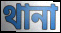
থানা